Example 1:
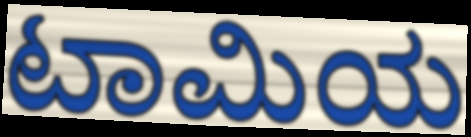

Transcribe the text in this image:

ಟಾಮಿಯ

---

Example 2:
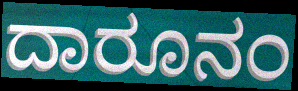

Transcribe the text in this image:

ದಾರೂನಂ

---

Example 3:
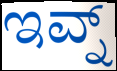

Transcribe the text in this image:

ಇವ್ನ್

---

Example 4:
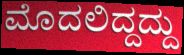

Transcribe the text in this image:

ಮೊದಲಿದ್ದದ್ದು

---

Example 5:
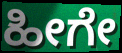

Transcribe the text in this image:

ಹೀಗೇ